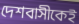
দেশবাসীকেই